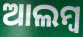
ଆଲମ୍ବ